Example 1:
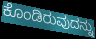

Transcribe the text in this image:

ಕೊಂಡಿರುವುದನ್ನು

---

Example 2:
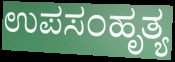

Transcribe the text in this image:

ಉಪಸಂಹೃತ್ಯ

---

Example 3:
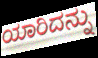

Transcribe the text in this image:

ಯಾರಿದನ್ನು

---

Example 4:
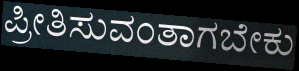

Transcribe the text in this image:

ಪ್ರೀತಿಸುವಂತಾಗಬೇಕು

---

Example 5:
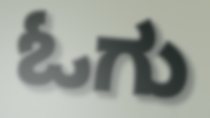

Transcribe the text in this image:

ಓಗು